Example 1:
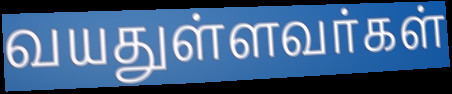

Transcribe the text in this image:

வயதுள்ளவர்கள்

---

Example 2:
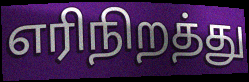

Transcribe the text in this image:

எரிநிறத்து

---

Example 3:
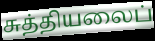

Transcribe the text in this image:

சுத்தியலைப்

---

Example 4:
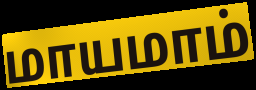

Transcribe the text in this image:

மாயமாம்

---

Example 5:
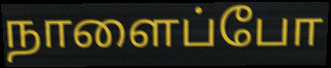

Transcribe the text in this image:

நாளைப்போ